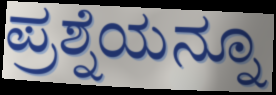
ಪ್ರಶ್ನೆಯನ್ನೂ